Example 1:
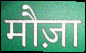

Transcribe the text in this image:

मौज़ा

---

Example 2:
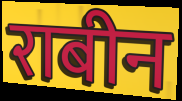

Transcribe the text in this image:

राबीन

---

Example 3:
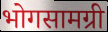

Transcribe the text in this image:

भोगसामग्री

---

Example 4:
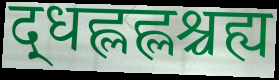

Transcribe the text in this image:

द्धह्लह्लश्चह्य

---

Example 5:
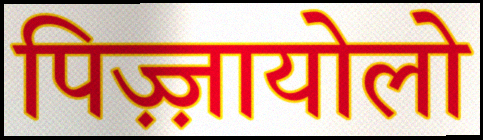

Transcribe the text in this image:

पिज़्ज़ायोलो